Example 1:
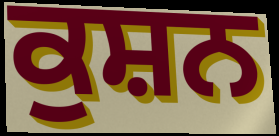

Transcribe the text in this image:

ਕੁਸ਼ਨ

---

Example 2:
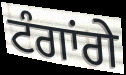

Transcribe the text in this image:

ਟੰਗਾਂਗੇ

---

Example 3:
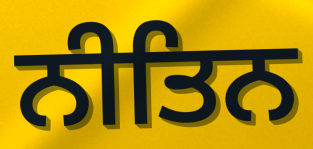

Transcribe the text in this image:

ਨੀਤਿਨ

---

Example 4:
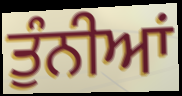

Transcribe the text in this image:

ਤੁੰਨੀਆਂ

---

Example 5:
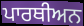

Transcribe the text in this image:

ਪਾਰਥੀਅਨ